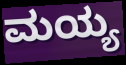
ಮಯ್ಯ